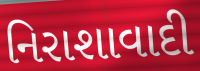
નિરાશાવાદી